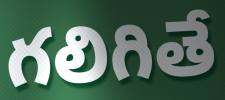
గలిగితే